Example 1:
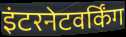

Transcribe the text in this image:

इंटरनेटवर्किंग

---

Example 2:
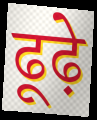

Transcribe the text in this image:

ढूढ़े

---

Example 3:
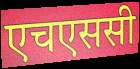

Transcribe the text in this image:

एचएससी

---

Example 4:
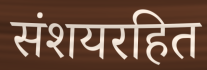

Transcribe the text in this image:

संशयरहित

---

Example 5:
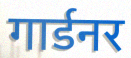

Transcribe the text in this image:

गार्डनर